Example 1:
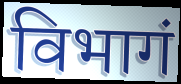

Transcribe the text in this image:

विभागं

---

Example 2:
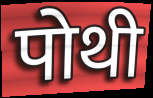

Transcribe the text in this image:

पोथी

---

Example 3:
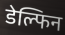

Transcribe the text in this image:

डेल्फिन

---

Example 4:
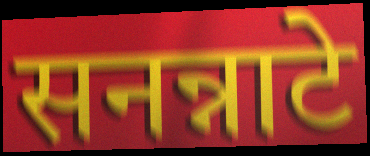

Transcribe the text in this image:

सनन्नाटे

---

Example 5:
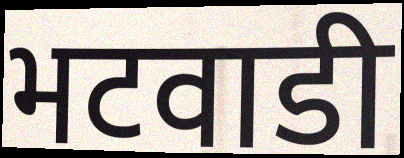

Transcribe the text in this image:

भटवाडी